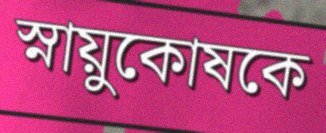
স্নায়ুকোষকে